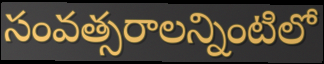
సంవత్సరాలన్నింటిలో